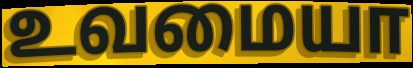
உவமையா